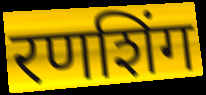
रणशिंग